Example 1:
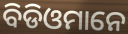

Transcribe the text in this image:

ବିଡିଓମାନେ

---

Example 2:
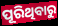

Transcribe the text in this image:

ପୂରିଥିବାରୁ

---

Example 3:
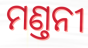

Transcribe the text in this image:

ମଣ୍ତନୀ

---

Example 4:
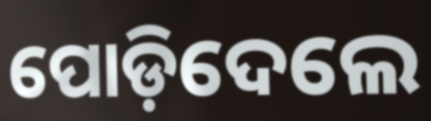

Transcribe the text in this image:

ପୋଡ଼ିଦେଲେ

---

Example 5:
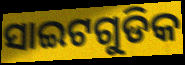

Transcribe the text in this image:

ସାଇଟଗୁଡିକ